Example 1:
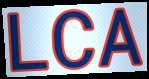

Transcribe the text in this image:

LCA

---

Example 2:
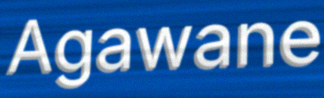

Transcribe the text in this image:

Agawane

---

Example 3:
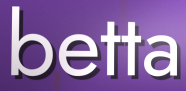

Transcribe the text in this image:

betta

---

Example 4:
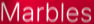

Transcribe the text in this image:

Marbles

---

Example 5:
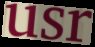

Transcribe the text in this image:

usr